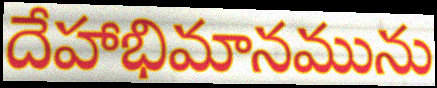
దేహాభిమానమును